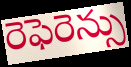
రెఫెరెన్సు